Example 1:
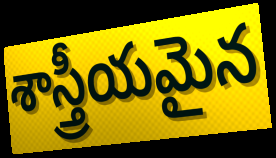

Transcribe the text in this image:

శాస్త్రీయమైన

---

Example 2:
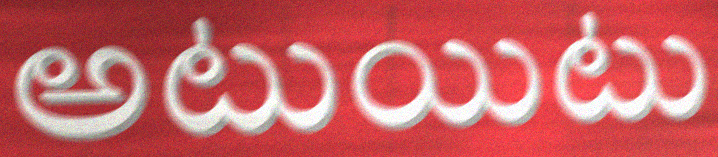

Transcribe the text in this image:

అటుయిటు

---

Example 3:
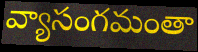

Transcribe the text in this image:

వ్యాసంగమంతా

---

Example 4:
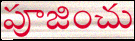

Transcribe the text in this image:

పూజించు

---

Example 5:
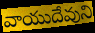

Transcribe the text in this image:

వాయుదేవుని